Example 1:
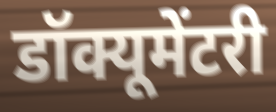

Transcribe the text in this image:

डॉक्यूमेंटरी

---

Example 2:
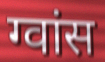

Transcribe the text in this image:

ग्वांस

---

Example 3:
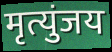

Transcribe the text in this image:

मृत्युंजय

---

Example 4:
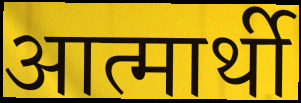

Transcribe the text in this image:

आत्मार्थी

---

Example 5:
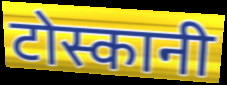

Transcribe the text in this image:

टोस्कानी